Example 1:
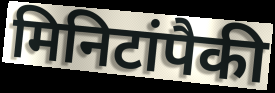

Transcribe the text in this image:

मिनिटांपैकी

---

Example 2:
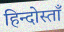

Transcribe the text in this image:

हिन्दोस्ताँ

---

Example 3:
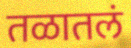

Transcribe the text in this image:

तळातलं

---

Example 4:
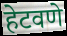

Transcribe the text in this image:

हेटवणे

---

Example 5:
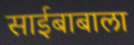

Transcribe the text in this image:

साईबाबाला